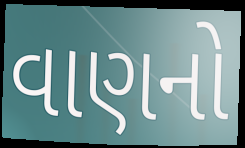
વાણનો